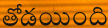
తోడయింది